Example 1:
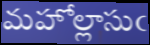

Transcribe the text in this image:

మహోల్లాసుఁ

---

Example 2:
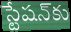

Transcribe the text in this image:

స్టేషన్‍కు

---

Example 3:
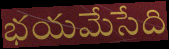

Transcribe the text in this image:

భయమేసేది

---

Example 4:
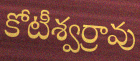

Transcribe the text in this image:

కోటీశ్వర్రావు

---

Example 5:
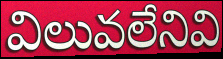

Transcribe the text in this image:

విలువలేనివి